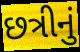
છત્રીનું